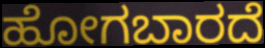
ಹೋಗಬಾರದೆ